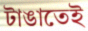
টাঙাতেই